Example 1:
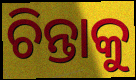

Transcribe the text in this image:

ଚିନ୍ତାକୁ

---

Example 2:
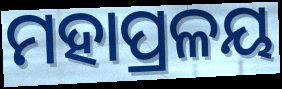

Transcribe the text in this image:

ମହାପ୍ରଳୟ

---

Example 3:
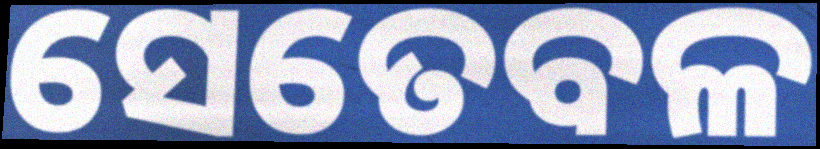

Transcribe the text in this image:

ସେତେବଳ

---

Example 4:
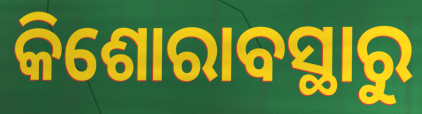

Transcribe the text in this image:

କିଶୋରାବସ୍ଥାରୁ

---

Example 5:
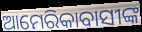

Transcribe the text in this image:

ଆମେରିକାବାସୀଙ୍କ